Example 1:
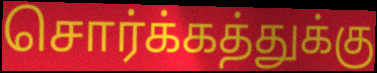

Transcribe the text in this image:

சொர்க்கத்துக்கு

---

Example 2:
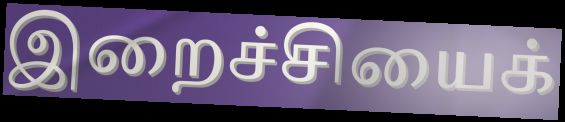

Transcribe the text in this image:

இறைச்சியைக்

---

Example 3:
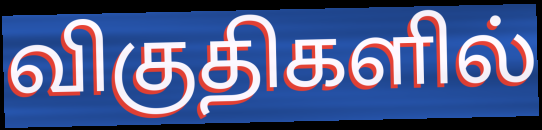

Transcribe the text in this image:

விகுதிகளில்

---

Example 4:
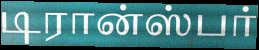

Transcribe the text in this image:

டிரான்ஸ்பர்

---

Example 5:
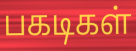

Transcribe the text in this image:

பகடிகள்